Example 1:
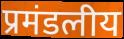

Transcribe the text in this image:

प्रमंडलीय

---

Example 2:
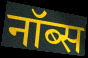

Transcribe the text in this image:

नॉब्स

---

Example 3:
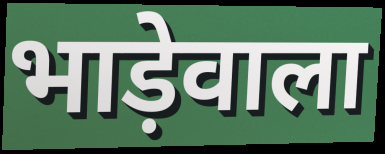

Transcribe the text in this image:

भाड़ेवाला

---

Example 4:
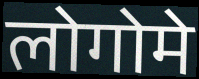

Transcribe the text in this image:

लोगोमे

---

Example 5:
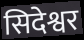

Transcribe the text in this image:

सिदेश्वर